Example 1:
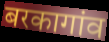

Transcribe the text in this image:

बरकागांव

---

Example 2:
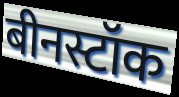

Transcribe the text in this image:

बीनस्टॉक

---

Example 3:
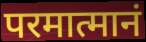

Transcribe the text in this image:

परमात्मानं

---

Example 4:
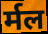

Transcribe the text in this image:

र्मल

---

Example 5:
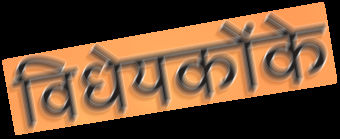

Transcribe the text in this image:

विधेयकोंके